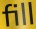
fill